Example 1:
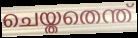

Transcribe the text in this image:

ചെയ്തതെന്ത്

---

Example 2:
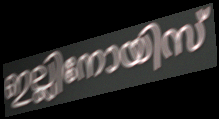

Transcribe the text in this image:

ഇല്ലിനോയിസ്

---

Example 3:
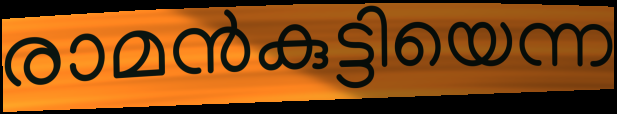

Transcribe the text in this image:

രാമൻകുട്ടിയെന്ന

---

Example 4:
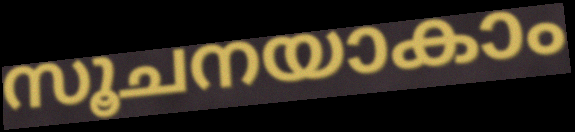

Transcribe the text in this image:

സൂചനയാകാം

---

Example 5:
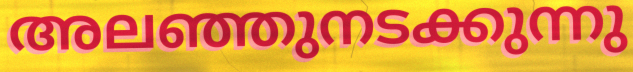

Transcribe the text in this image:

അലഞ്ഞുനടക്കുന്നു